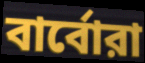
বার্বোরা